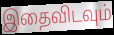
இதைவிடவும்